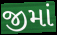
જીમાં